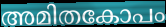
അമിതകോപം